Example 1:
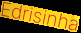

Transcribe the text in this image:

Edrisinha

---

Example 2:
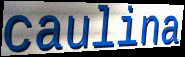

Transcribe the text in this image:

caulina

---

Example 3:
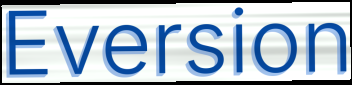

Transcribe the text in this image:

Eversion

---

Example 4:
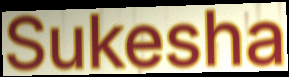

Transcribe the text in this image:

Sukesha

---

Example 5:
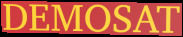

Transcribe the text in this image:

DEMOSAT